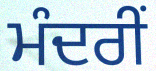
ਮੰਦਰੀਂ